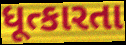
ધૂત્કારતા